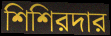
শিশিরদার